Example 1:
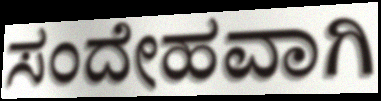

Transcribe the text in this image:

ಸಂದೇಹವಾಗಿ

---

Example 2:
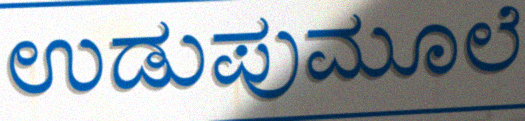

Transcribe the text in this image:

ಉಡುಪುಮೂಲೆ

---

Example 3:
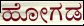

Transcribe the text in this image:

ಹೋಗಡ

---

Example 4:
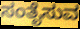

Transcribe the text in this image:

ಸಂತೈಸುವ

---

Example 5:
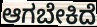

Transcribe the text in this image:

ಆಗಬೇಕಿದೆ